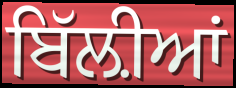
ਬਿੱਲ਼ੀਆਂ